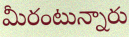
మీరంటున్నారు